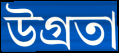
উগ্ৰতা